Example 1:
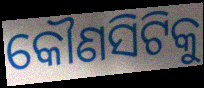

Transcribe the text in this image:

କୌଣସିଟିକୁ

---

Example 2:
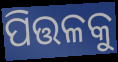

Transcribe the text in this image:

ପିତ୍ତଳକୁ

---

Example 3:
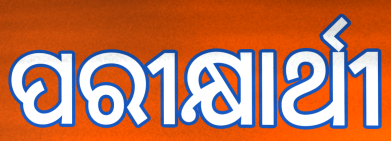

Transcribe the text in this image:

ପରୀକ୍ଷାର୍ଥୀ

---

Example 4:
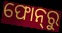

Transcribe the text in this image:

ଫୋନ୍‌ରୁ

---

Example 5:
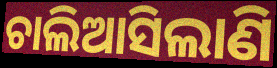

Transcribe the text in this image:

ଚାଲିଆସିଲାଣି